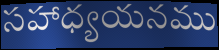
సహాధ్యయనము